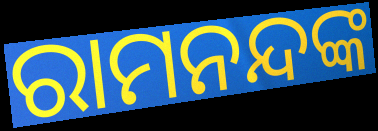
ରାମନନ୍ଦଙ୍କ